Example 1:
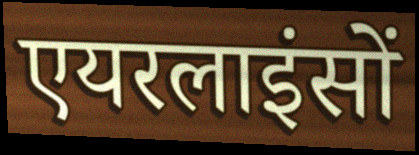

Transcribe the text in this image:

एयरलाइंसों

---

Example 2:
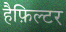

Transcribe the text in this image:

हैफ़िल्टर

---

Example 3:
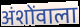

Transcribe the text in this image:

अंशोंवाला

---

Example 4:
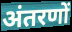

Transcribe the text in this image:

अंतरणों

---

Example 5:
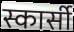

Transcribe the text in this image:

स्कार्सी